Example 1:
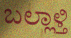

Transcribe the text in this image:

ಬಲ್ಲಾಳ್ತಿ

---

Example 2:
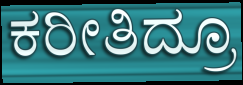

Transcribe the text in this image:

ಕರೀತಿದ್ರೂ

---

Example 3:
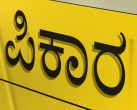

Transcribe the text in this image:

ಪಿಕಾರ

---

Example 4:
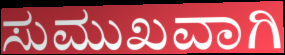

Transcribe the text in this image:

ಸುಮುಖವಾಗಿ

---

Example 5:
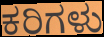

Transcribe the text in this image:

ಕರಿಗಳು